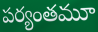
పర్యంతమూ